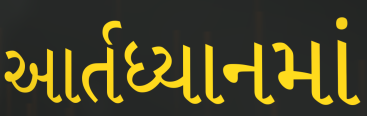
આર્તધ્યાનમાં